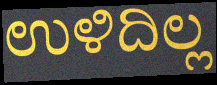
ಉಳಿದಿಲ್ಲ